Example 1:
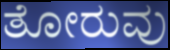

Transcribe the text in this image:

ತೋರುವು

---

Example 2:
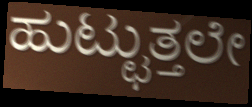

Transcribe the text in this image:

ಹುಟ್ಟುತ್ತಲೇ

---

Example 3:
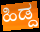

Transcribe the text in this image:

ಹಿಡ್ದ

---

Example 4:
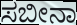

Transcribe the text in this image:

ಸಬೀನಾ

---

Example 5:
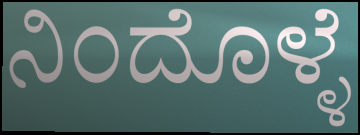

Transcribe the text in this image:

ನಿಂದೊಳ್ಳೆ